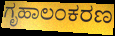
ಗೃಹಾಲಂಕರಣ